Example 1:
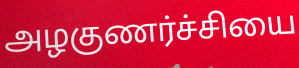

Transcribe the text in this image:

அழகுணர்ச்சியை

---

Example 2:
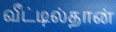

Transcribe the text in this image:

வீட்டில்தான்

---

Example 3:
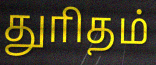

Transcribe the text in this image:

துரிதம்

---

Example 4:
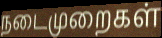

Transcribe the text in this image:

நடைமுறைகள்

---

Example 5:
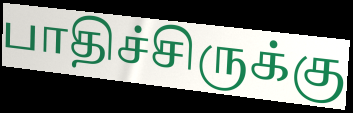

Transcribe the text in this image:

பாதிச்சிருக்கு